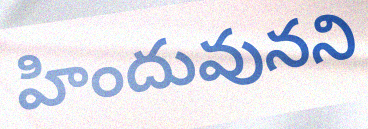
హిందువునని